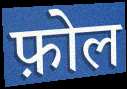
फ़ोल